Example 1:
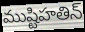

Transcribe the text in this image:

ముష్టిహతిన్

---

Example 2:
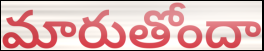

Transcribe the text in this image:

మారుతోందా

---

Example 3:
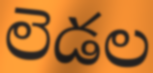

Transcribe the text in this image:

లెడల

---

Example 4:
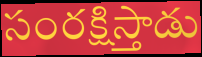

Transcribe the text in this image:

సంరక్షిస్తాడు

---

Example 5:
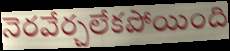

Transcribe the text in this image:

నెరవేర్చలేకపోయింది